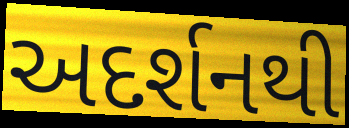
અદર્શનથી